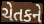
ચેતકને